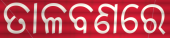
ତାଳବଣରେ